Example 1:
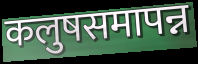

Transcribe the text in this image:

कलुषसमापन्न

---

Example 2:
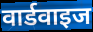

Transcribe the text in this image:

वार्डवाइज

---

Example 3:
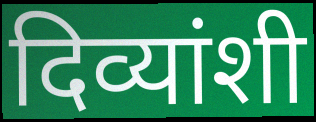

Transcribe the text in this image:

दिव्यांशी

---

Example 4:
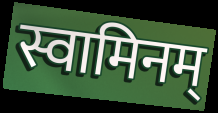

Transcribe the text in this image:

स्वामिनम्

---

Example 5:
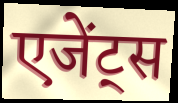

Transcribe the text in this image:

एजेंट्स